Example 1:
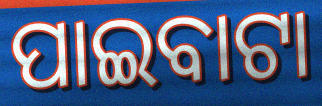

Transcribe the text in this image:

ପାଇବାଟା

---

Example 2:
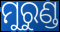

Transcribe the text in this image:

ମୁରୁଣ୍ଡ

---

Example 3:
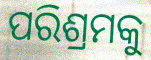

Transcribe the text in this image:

ପରିଶ୍ରମକୁ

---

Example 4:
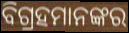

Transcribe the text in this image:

ବିଗ୍ରହମାନଙ୍କର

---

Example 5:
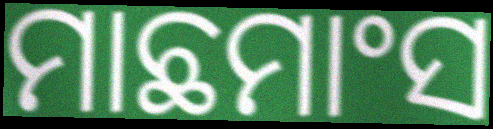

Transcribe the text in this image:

ମାଛମାଂସ